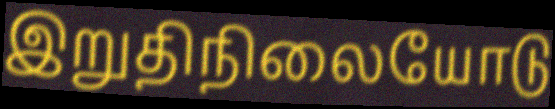
இறுதிநிலையோடு